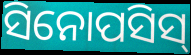
ସିନୋପସିସ୍